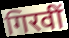
गिरवीं